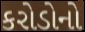
કરોડોનો